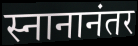
स्नानानंतर